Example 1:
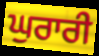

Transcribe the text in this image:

ਘੁਰਾਰੀ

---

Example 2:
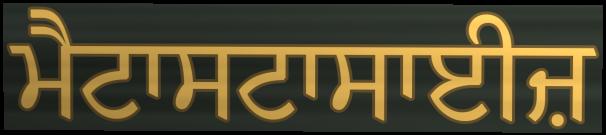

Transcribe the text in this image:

ਮੈਟਾਸਟਾਸਾਈਜ਼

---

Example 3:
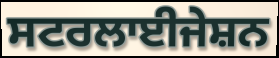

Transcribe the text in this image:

ਸਟਰਲਾਈਜੇਸ਼ਨ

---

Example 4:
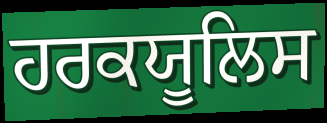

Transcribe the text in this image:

ਹਰਕਯੂਲਿਸ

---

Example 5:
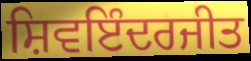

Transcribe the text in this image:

ਸ਼ਿਵਇੰਦਰਜੀਤ